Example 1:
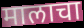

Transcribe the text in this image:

मालाचा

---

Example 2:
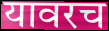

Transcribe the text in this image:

यावरच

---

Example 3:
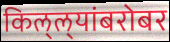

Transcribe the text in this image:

किल्ल्यांबरोबर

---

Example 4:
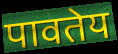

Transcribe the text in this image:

पावतेय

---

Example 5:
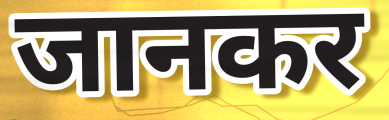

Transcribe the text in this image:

जानकर